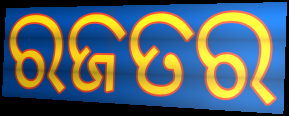
ରଜତର